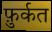
फ़ुर्कत